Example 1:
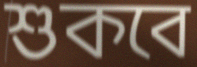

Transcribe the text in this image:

শুকবে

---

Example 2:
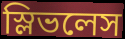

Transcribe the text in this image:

স্লিভলেস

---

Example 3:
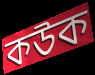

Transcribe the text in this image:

কউক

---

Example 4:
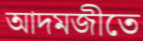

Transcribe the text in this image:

আদমজীতে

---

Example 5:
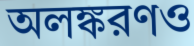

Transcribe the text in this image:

অলঙ্করণও